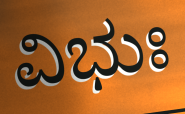
ವಿಭುಃ